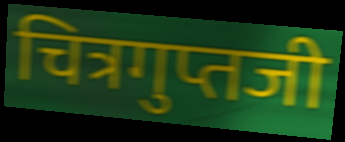
चित्रगुप्तजी